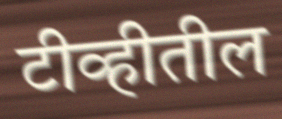
टीव्हीतील